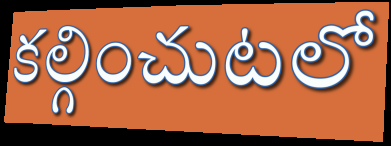
కల్గించుటలో